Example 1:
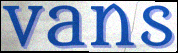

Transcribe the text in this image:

vans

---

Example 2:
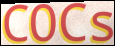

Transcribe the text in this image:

COCs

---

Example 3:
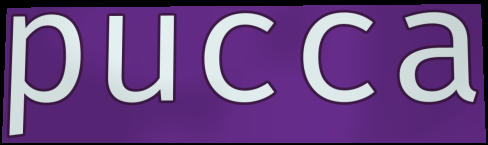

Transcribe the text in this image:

pucca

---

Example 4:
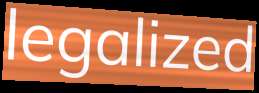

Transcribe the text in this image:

legalized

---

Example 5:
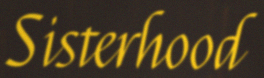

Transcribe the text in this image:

Sisterhood